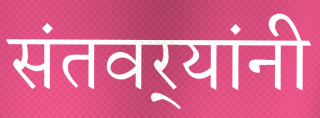
संतवर्यांनी